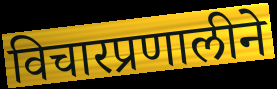
विचारप्रणालीने